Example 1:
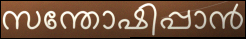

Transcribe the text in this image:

സന്തോഷിപ്പാൻ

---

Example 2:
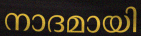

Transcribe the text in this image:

നാദമായി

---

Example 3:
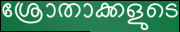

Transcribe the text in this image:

ശ്രോതാക്കളുടെ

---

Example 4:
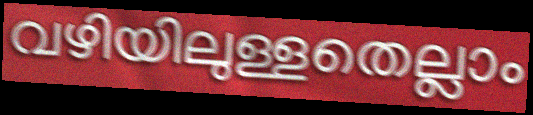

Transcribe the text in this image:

വഴിയിലുള്ളതെല്ലാം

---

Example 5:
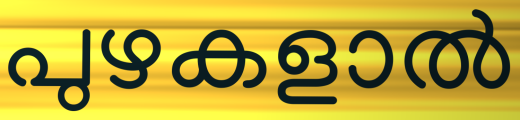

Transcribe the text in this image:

പുഴകളാൽ